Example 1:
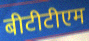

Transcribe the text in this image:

बीटीटीएम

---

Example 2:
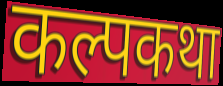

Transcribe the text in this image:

कल्पकथा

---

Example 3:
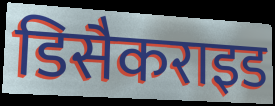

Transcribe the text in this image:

डिसैकराइड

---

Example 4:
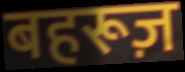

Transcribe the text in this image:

बहरूज़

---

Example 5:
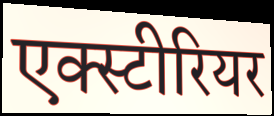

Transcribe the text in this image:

एक्स्टीरियर